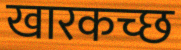
खारकच्छ